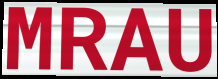
MRAU